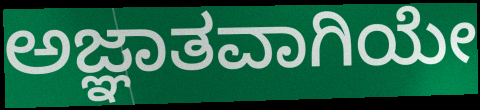
ಅಜ್ಞಾತವಾಗಿಯೇ